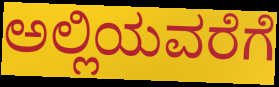
ಅಲ್ಲಿಯವರೆಗೆ